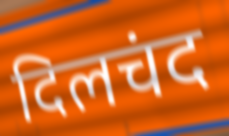
दिलचंद